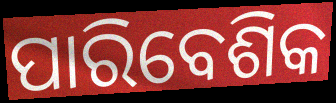
ପାରିବେଶିକ